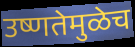
उष्णतेमुळेच